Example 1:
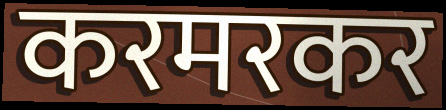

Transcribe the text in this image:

करमरकर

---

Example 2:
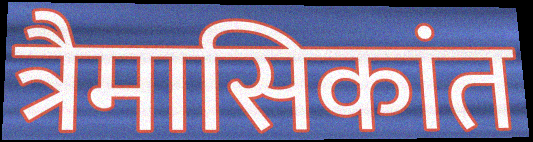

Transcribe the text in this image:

त्रैमासिकांत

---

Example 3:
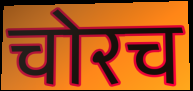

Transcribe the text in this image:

चोरच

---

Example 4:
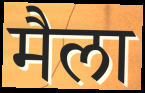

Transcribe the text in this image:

मैला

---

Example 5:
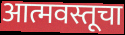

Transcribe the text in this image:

आत्मवस्तूचा